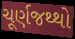
ચૂર્ણજથ્થો